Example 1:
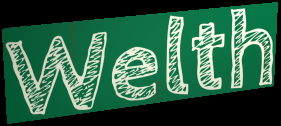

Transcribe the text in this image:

Welth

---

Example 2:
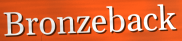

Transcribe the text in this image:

Bronzeback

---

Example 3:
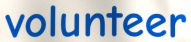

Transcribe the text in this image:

volunteer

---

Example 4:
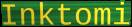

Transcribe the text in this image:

Inktomi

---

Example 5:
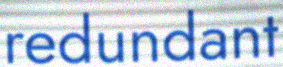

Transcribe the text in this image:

redundant